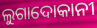
ଲୁଗାଦୋକାନୀ